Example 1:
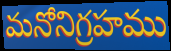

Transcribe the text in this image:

మనోనిగ్రహము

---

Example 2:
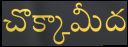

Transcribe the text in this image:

చొక్కామీద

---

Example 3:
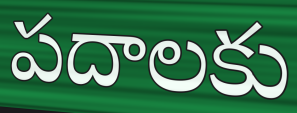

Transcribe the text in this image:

పదాలకు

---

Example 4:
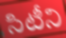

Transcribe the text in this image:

సిటీని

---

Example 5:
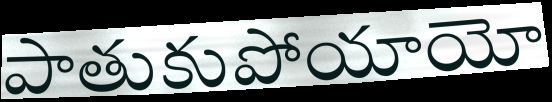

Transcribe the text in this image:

పాతుకుపోయాయో